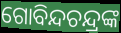
ଗୋବିନ୍ଦଚନ୍ଦ୍ରଙ୍କ